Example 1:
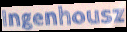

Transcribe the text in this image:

Ingenhousz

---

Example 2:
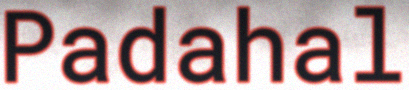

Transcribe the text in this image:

Padahal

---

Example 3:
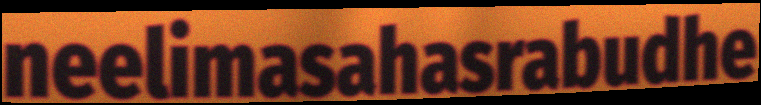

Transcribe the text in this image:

neelimasahasrabudhe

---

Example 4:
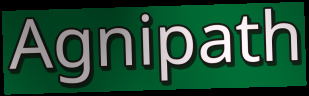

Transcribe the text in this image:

Agnipath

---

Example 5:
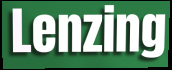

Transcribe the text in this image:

Lenzing